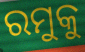
ରମୁକୁ